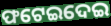
ଫଟେଇଦେଇ